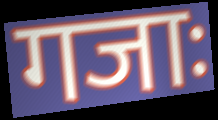
गजाः